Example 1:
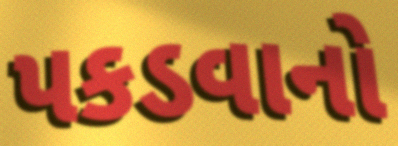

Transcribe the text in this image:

પકડવાનો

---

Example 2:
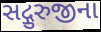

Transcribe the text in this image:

સદ્ગુરુજીના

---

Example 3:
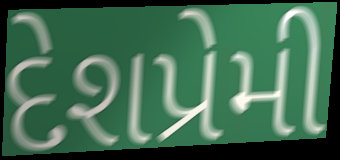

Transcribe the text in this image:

દેશપ્રેમી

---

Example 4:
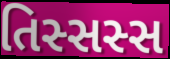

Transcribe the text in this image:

તિસ્સસ્સ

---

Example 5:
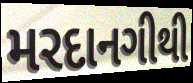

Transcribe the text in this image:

મરદાનગીથી